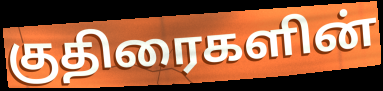
குதிரைகளின்